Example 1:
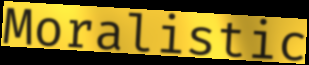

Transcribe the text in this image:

Moralistic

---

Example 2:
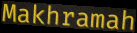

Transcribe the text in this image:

Makhramah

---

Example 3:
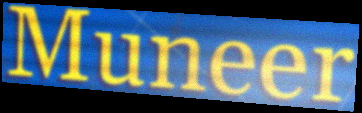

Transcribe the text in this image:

Muneer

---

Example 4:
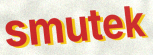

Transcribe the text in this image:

smutek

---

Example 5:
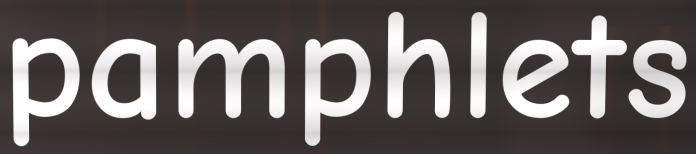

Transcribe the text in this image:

pamphlets